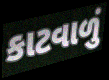
કાટવાળું